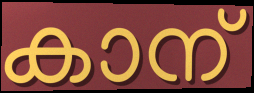
കാന്